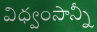
విధ్వంసాన్నీ